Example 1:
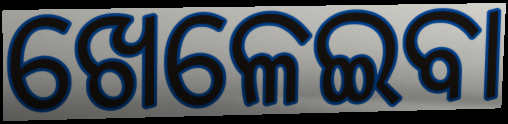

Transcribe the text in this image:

ଖେଳେଇବା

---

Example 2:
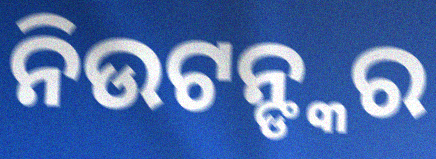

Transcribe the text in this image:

ନିଉଟନ୍ଙ୍କର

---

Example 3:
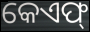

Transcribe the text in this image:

କେଏଫ୍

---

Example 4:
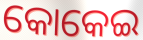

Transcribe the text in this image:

କୋକେଇ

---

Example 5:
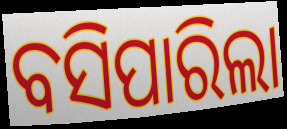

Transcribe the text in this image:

ବସିପାରିଲା